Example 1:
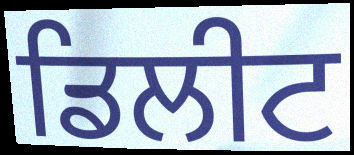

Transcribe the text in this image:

ਡਿਲੀਟ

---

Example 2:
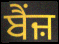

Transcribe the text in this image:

ਬੈਂਜ਼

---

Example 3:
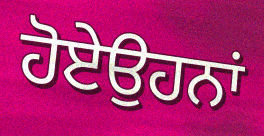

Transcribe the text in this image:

ਹੋਏਉਹਨਾਂ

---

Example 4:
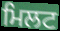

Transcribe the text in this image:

ਮਿਲਟ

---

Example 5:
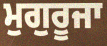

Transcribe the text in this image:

ਮੁਗੁਰੂਜਾ